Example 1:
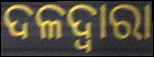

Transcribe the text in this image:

ଦଳଦ୍ୱାରା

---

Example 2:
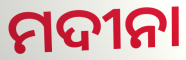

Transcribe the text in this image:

ମଦୀନା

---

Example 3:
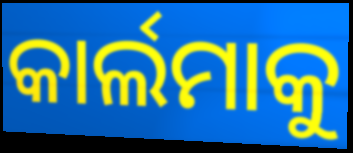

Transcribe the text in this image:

କାର୍ଲମାକୁ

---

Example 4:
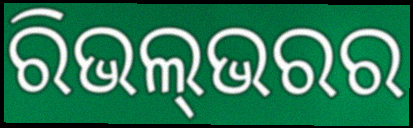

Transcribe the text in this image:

ରିଭଲ୍‍ଭରର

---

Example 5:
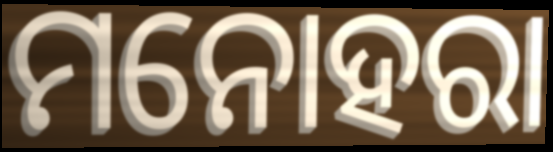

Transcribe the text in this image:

ମନୋହରା